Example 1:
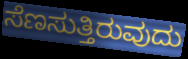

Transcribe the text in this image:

ಸೆಣಸುತ್ತಿರುವುದು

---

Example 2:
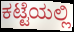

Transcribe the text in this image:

ಕಟ್ಟೆಯಲ್ಲಿ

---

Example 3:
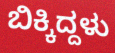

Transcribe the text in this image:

ಬಿಕ್ಕಿದ್ದಳು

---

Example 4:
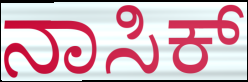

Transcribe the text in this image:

ನಾಸಿಕ್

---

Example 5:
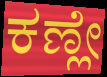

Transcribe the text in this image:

ಕಣ್ಲೇ